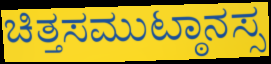
ಚಿತ್ತಸಮುಟ್ಠಾನಸ್ಸ